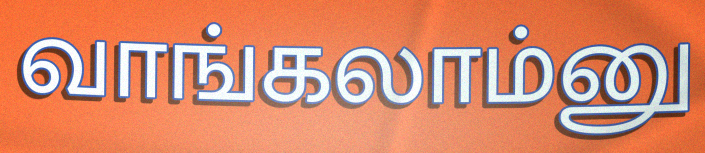
வாங்கலாம்னு